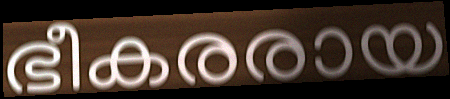
ഭീകരരായ